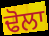
ਢੋਲਾ